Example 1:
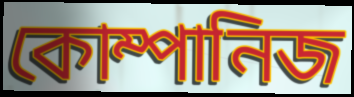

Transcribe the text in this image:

কোম্পানিজ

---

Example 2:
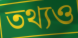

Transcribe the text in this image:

তথ্যও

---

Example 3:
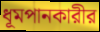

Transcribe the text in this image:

ধূমপানকারীর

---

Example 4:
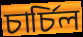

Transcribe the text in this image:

চার্চিল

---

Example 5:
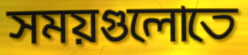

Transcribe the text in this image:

সময়গুলোতে